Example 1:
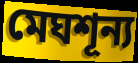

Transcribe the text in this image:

মেঘশূন্য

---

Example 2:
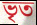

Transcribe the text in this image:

ভৃত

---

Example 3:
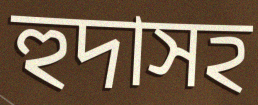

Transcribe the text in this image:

হুদাসহ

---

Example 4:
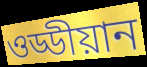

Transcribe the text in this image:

ওড্ডীয়ান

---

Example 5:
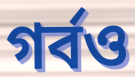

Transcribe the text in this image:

গর্বও